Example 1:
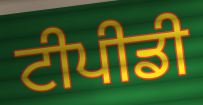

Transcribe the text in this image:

ਟੀਪੀਡੀ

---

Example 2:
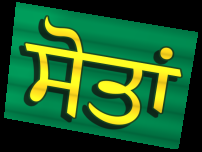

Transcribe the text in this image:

ਸੋਤਾਂ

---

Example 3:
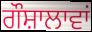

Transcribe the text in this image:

ਗੌਸ਼ਾਲਾਵਾਂ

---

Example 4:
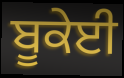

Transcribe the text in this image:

ਬੂਕੇਈ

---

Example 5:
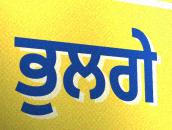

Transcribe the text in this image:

ਭੁਲਗੇ